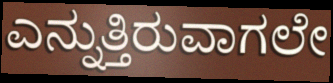
ಎನ್ನುತ್ತಿರುವಾಗಲೇ